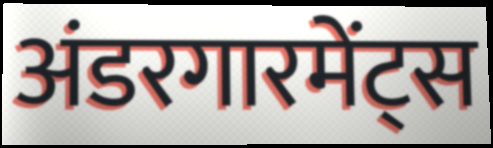
अंडरगारमेंट्स